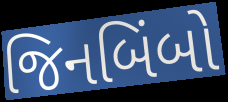
જિનબિંબો